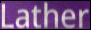
Lather